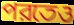
পরতেও